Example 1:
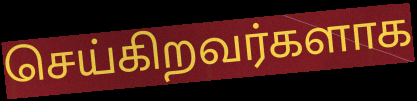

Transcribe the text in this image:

செய்கிறவர்களாக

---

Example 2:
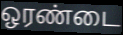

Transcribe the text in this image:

ஒரண்டை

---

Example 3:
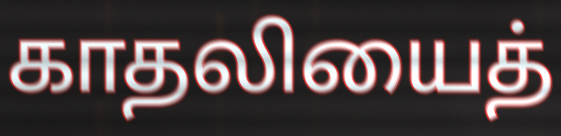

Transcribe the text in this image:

காதலியைத்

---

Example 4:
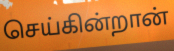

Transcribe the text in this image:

செய்கின்றான்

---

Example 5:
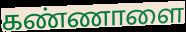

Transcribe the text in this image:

கண்ணாளை